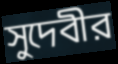
সুদেবীর